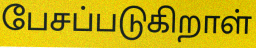
பேசப்படுகிறாள்